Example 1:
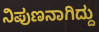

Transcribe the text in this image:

ನಿಪುಣನಾಗಿದ್ದು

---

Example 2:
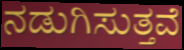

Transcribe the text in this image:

ನಡುಗಿಸುತ್ತವೆ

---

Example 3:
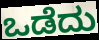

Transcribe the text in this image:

ಒಡೆದು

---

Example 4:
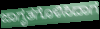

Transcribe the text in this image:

ಜಾಗೃತಗೊಳಿಸಿದಾಗ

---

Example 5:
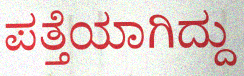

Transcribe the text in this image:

ಪತ್ತೆಯಾಗಿದ್ದು